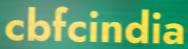
cbfcindia